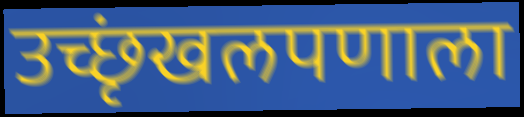
उच्छृंखलपणाला